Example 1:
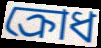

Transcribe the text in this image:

ক্রোধ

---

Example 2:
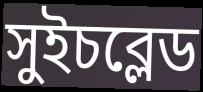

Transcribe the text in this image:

সুইচব্লেড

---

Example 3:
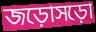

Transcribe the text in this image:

জড়োসড়ো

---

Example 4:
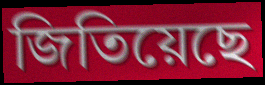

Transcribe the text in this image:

জিতিয়েছে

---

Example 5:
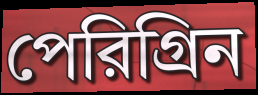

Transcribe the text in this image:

পেরিগ্রিন